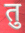
तु